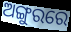
ଅଙ୍ଗୁରରେ